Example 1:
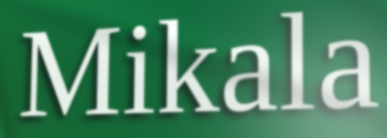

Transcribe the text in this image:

Mikala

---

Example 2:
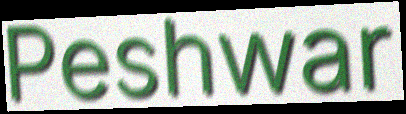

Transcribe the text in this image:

Peshwar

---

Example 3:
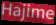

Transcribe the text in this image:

Hajime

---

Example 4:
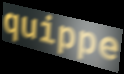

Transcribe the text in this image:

quippe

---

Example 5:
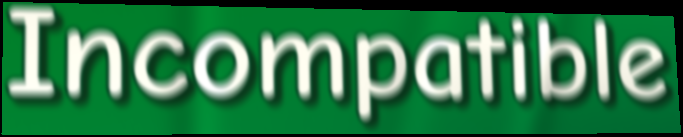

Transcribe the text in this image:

Incompatible